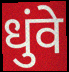
धुंवे